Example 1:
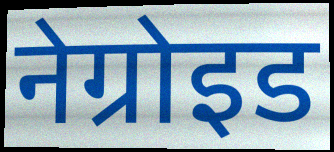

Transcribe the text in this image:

नेग्रोइड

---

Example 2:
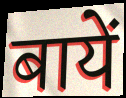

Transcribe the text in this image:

बायें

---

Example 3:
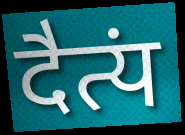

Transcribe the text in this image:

दैत्यं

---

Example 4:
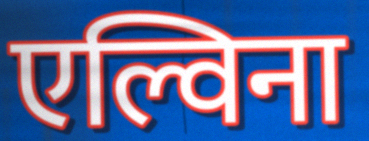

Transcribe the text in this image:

एल्विना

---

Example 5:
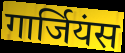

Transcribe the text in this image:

गार्जियंस